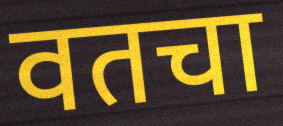
वतचा